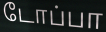
டோப்பா